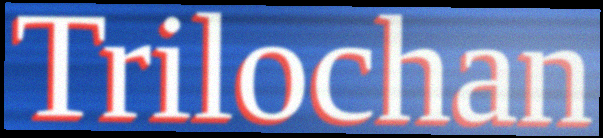
Trilochan